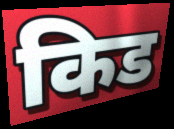
किड